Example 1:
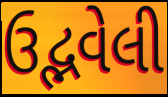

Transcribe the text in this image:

ઉદ્ભવેલી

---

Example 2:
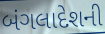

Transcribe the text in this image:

બંગલાદેશની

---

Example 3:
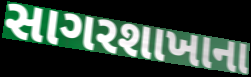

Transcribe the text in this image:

સાગરશાખાના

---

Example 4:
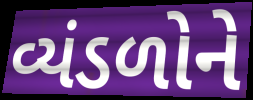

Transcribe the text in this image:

વ્યંડળોને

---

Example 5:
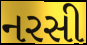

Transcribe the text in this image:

નરસી